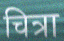
चित्रा